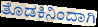
ತೊಡಕಿನಿಂದಾಗಿ